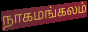
நாகமங்கலம்